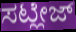
ಸಟ್ಲೇಜ್